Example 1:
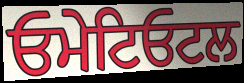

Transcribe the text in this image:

ਓਮੇਟਿਓਟਲ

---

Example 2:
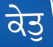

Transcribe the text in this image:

ਕੇਤੁ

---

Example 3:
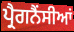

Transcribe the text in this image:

ਪ੍ਰੈਗਨੈਂਸੀਆਂ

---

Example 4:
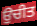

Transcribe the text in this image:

ਉਚੀਤ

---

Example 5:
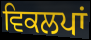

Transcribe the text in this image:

ਵਿਕਲਪਾਂ